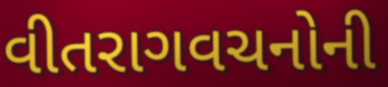
વીતરાગવચનોની